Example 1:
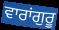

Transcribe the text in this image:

ਵਾਰਾਂਗੁਰੂ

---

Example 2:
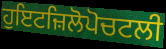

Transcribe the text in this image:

ਹੁਇਟਜ਼ਿਲੋਪੋਚਟਲੀ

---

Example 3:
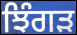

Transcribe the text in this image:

ਝਿੰਗੜ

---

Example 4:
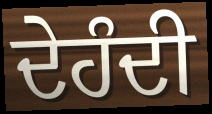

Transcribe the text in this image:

ਦੇਹੰਦੀ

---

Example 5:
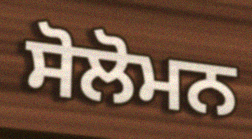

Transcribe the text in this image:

ਸੋਲੋਮਨ